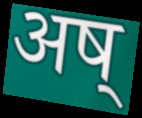
अष्